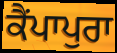
ਕੈਂਪਾਪੁਰਾ